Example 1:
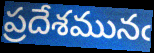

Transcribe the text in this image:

ప్రదేశమునఁ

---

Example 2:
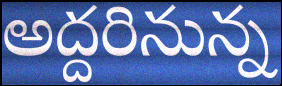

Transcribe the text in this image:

అద్దరినున్న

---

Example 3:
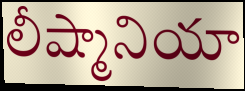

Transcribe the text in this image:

లీష్మానియా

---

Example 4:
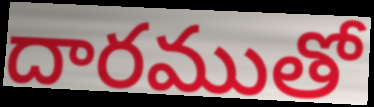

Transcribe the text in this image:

దారముతో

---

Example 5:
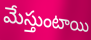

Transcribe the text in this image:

మేస్తుంటాయి